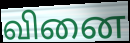
வினை